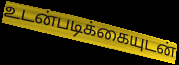
உடன்படிக்கையுடன்